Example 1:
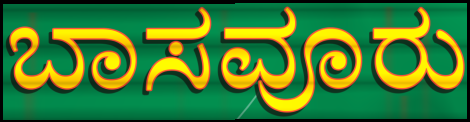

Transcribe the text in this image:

ಬಾಸವೂರು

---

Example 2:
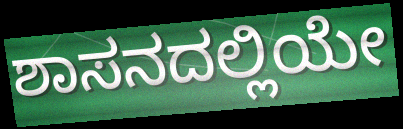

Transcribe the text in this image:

ಶಾಸನದಲ್ಲಿಯೇ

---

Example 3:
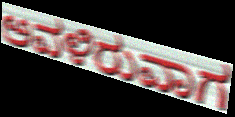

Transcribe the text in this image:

ಅವಳಿರುವಾಗ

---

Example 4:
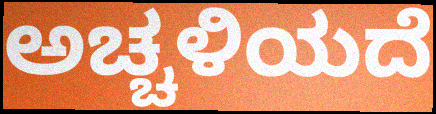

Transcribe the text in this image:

ಅಚ್ಚಳಿಯದೆ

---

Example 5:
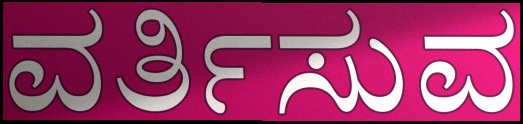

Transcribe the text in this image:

ವರ್ತಿಸುವ